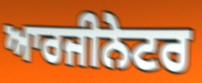
ਆਰਜੀਨੇਟਰ